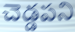
చెడ్డపని